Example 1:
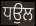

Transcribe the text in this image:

ਧਉਲ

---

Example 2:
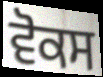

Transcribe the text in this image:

ਵੋਕਸ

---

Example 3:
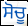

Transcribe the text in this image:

ਸੋਚੂ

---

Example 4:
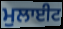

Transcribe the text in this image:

ਮੁਲਾਈਟ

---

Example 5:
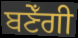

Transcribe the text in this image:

ਬਣੇਁਗੀ